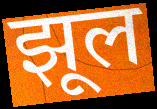
झूल